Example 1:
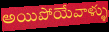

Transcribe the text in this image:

అయిపోయేవాళ్ళు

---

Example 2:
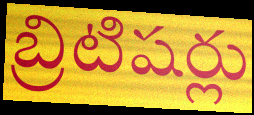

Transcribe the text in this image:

బ్రిటిషర్లు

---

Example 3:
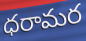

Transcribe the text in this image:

ధరామర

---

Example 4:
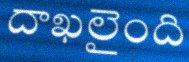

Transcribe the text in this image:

దాఖలైంది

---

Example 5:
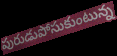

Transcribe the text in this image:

పురుడుపోసుకుంటున్న